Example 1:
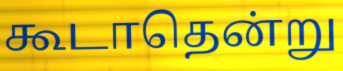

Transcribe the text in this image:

கூடாதென்று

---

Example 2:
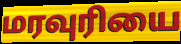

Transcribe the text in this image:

மரவுரியை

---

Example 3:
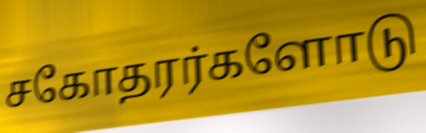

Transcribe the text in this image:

சகோதரர்களோடு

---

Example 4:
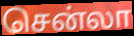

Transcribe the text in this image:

சென்லா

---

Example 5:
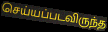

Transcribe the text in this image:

செய்யப்படவிருந்த